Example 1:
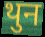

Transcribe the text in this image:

थुन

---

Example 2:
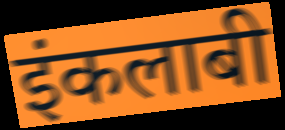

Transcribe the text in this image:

इंकलाबी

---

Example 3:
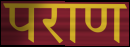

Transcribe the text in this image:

पराण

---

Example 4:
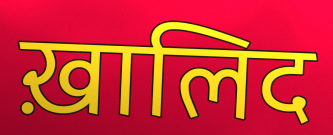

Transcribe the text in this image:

ख़ालिद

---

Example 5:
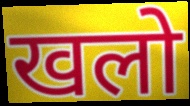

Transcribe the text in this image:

खलो